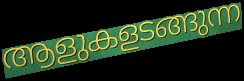
ആളുകളടങ്ങുന്ന